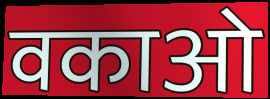
वकाओ